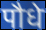
पौधे